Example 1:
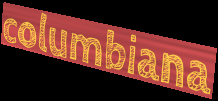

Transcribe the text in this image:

columbiana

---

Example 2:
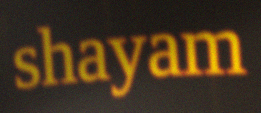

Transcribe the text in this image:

shayam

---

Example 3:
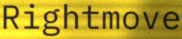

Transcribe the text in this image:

Rightmove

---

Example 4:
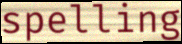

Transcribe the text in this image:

spelling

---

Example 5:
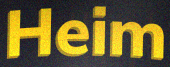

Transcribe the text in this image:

Heim